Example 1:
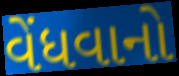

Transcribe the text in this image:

વેંધવાનો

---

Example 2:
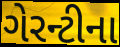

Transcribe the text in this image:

ગેરન્ટીના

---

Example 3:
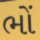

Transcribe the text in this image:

ભોં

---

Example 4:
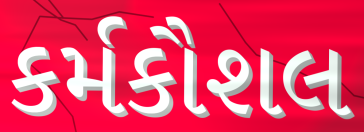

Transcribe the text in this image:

કર્મકૌશલ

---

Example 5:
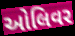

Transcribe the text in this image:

ઓલિવર